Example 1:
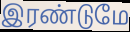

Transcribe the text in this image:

இரண்டுமே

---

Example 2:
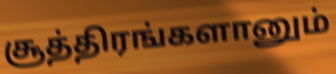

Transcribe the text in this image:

சூத்திரங்களானும்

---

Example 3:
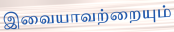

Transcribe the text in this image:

இவையாவற்றையும்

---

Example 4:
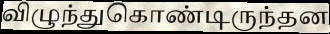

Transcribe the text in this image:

விழுந்துகொண்டிருந்தன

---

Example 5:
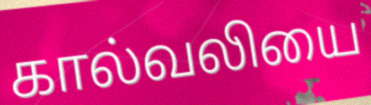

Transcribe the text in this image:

கால்வலியை